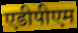
एडीपीएम